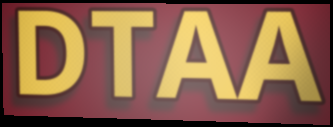
DTAA